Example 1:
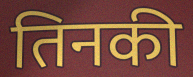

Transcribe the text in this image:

तिनकी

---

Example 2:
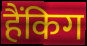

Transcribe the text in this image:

हैंकिग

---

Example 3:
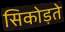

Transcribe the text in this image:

सिकोड़ते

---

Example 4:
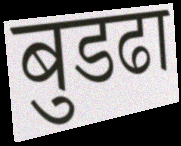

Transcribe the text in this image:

बुडढा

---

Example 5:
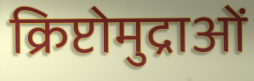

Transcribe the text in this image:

क्रिप्टोमुद्राओं